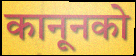
कानूनको